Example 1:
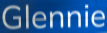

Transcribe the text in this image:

Glennie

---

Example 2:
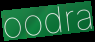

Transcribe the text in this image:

oodra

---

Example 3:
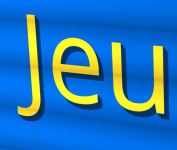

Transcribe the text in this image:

Jeu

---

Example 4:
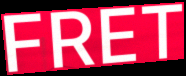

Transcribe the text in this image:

FRET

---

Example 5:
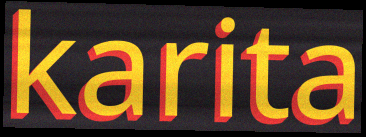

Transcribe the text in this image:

karita